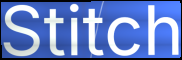
Stitch